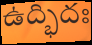
ఉద్భిదః